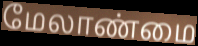
மேலாண்மை